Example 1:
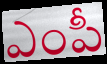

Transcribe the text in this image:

ఎంపీ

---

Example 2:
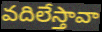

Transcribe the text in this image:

వదిలేస్తావా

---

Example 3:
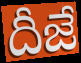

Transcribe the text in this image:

దీజే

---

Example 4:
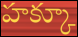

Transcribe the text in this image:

హక్కూ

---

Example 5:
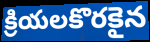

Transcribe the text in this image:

క్రియలకొరకైన